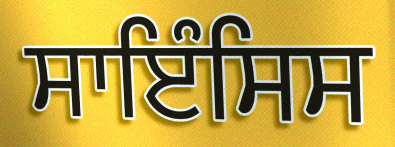
ਸਾਇੰਸਿਸ